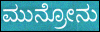
ಮುನ್ರೋನು